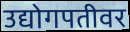
उद्योगपतीवर